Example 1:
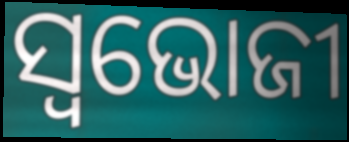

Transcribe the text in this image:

ସ୍ଵଭୋଜୀ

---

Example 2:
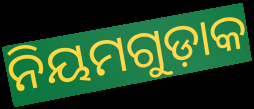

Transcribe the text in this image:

ନିୟମଗୁଡ଼ାକ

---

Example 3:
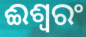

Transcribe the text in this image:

ଈଶ୍ୱରଂ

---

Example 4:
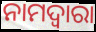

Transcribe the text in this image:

ନାମଦ୍ଵାରା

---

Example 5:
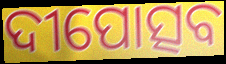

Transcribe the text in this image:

ଦୀପୋତ୍ସବ